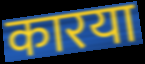
कारया